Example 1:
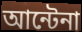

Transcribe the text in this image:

আন্টেনা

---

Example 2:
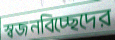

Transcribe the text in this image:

স্বজনবিচ্ছেদের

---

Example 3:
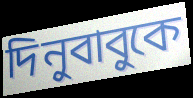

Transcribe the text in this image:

দিনুবাবুকে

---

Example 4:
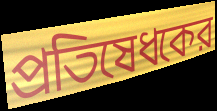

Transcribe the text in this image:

প্রতিষেধকের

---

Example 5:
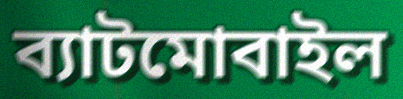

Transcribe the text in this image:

ব্যাটমোবাইল